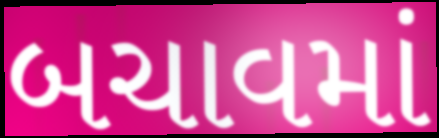
બચાવમાં